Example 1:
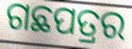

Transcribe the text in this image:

ଗଛପତ୍ରର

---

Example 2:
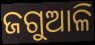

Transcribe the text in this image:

ଜଗୁଆଳି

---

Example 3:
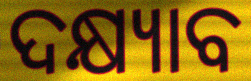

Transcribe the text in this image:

ଦକ୍ଷ୍ୟାବ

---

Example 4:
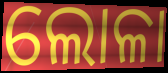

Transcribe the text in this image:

ଲୋଳା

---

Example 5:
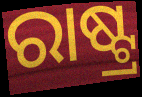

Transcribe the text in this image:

ରାଷ୍ଟ୍ର